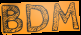
BDM